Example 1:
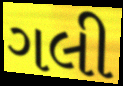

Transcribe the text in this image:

ગલી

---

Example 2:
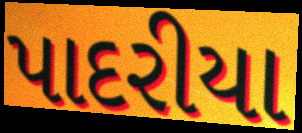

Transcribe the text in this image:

પાદરીયા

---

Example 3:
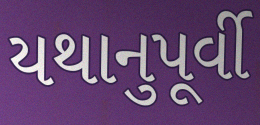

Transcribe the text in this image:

યથાનુપૂર્વી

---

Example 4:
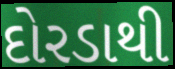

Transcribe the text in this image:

દોરડાથી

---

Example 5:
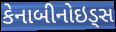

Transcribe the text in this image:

કેનાબીનોઇડ્સ